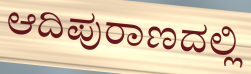
ಆದಿಪುರಾಣದಲ್ಲಿ